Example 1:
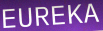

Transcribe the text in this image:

EUREKA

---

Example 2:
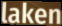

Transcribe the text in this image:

laken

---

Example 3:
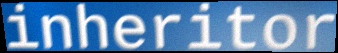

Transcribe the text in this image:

inheritor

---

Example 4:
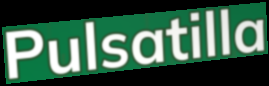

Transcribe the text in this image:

Pulsatilla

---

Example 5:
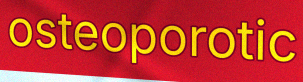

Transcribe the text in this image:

osteoporotic